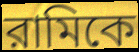
রামিকে